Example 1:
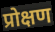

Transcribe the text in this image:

प्रोक्षण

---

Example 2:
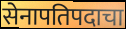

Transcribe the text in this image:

सेनापतिपदाचा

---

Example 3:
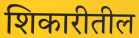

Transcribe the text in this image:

शिकारीतील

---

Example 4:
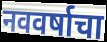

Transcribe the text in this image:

नववर्षाचा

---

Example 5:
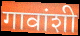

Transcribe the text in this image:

गावांशी